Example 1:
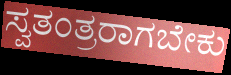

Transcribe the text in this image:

ಸ್ವತಂತ್ರರಾಗಬೇಕು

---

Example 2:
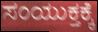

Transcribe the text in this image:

ಸಂಯುಕ್ತಕ್ಕೆ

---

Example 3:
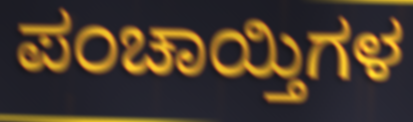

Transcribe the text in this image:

ಪಂಚಾಯ್ತಿಗಳ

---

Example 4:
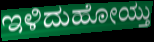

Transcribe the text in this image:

ಇಳಿದುಹೋಯ್ತು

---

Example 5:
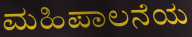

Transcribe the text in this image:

ಮಹಿಪಾಲನೆಯ